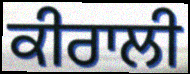
ਕੀਰਾਲੀ